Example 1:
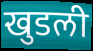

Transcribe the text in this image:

खुडली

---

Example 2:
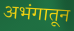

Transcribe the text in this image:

अभंगातून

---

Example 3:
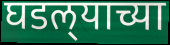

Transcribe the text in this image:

घडल्याच्या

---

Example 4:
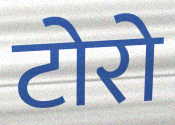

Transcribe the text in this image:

टोरो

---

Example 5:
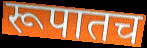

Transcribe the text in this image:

रूपातच